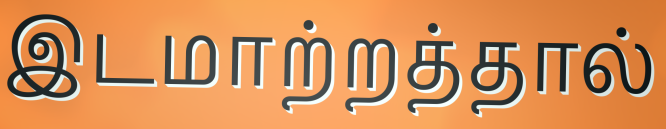
இடமாற்றத்தால்